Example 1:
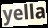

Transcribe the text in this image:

yella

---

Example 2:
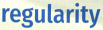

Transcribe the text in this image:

regularity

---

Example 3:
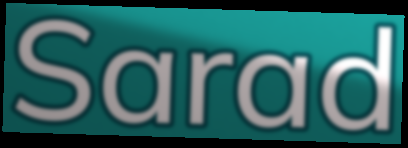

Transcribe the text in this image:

Sarad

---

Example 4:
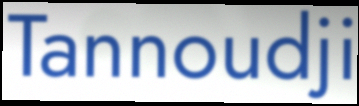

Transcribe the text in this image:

Tannoudji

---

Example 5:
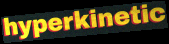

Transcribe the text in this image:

hyperkinetic